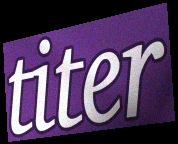
titer